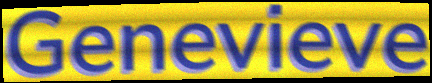
Genevieve